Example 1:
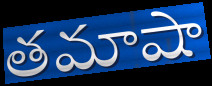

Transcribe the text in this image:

తమాషా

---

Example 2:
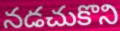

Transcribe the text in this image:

నడచుకొని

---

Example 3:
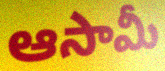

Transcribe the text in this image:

ఆసామీ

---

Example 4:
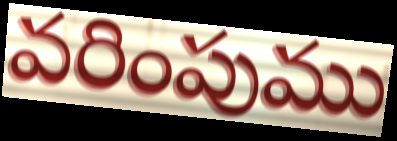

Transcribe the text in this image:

వరింపుము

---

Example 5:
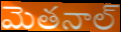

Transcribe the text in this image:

మెతనాల్